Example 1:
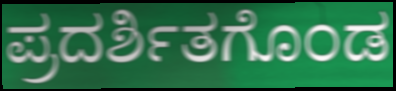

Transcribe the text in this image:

ಪ್ರದರ್ಶಿತಗೊಂಡ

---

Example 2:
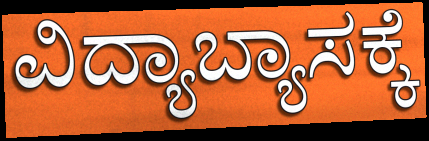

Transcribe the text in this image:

ವಿದ್ಯಾಬ್ಯಾಸಕ್ಕೆ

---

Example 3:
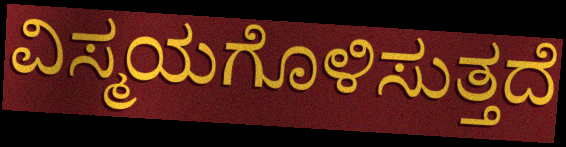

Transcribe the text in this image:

ವಿಸ್ಮಯಗೊಳಿಸುತ್ತದೆ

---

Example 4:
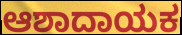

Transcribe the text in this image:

ಆಶಾದಾಯಕ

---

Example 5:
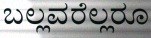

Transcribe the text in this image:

ಬಲ್ಲವರೆಲ್ಲರೂ